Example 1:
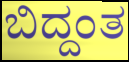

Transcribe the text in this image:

ಬಿದ್ದಂತ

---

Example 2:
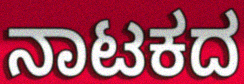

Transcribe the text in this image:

ನಾಟಕದ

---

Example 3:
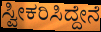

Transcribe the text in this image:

ಸ್ವೀಕರಿಸಿದ್ದೇನೆ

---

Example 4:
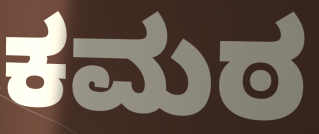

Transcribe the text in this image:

ಕಮಠ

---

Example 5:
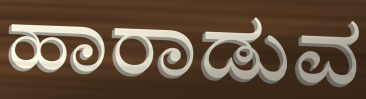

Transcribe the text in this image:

ಹಾರಾಡುವ